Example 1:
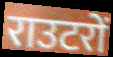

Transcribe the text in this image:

राउटरों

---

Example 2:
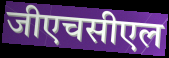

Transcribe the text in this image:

जीएचसीएल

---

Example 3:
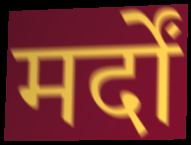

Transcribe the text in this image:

मर्दों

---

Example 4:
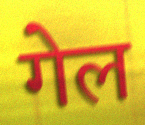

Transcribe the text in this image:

गेल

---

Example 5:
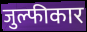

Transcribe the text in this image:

जुल्फीकार